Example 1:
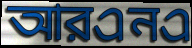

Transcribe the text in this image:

আরএনএ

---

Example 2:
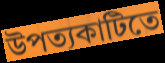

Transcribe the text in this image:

উপত্যকাটিতে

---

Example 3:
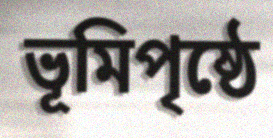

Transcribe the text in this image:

ভূমিপৃষ্ঠে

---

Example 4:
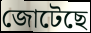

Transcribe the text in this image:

জোটেছে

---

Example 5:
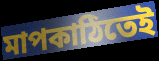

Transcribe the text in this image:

মাপকাঠিতেই